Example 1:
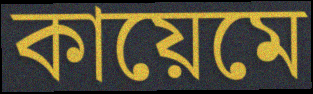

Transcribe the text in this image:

কায়েমে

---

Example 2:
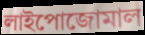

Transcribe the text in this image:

লাইপোজোমাল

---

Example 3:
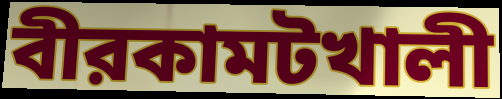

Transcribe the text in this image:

বীরকামটখালী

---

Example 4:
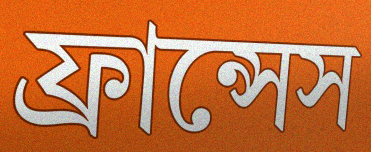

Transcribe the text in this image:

ফ্রান্সেস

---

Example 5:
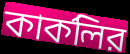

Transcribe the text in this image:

কার্কলির